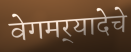
वेगमर्यादेचे